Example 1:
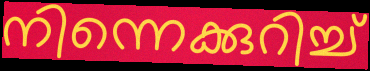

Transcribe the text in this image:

നിന്നെക്കുറിച്ച്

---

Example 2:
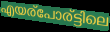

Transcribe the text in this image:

എയര്പോര്ട്ടിലെ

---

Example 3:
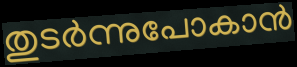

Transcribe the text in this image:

തുടർന്നുപോകാൻ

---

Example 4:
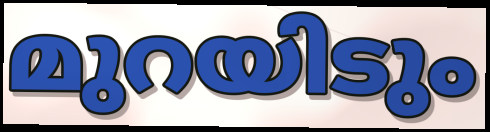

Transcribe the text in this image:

മുറയിടും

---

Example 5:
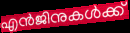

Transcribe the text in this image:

എൻജിനുകൾക്ക്